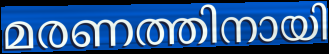
മരണത്തിനായി